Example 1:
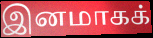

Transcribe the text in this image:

இனமாகக்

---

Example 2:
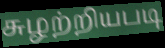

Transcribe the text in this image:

சுழற்றியபடி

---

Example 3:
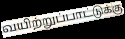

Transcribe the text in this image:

வயிற்றுப்பாட்டுக்கு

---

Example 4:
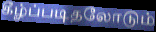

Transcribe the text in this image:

கீழ்ப்படிதலோடும்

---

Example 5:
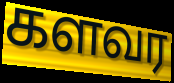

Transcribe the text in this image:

களவர